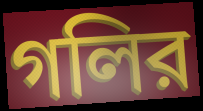
গলির